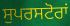
ਸੁਪਰਸਟੋਰਾਂ